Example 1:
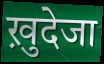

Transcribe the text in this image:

ख़ुदेजा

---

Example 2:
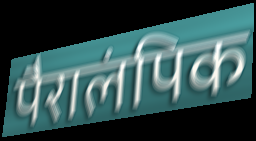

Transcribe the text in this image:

पैरालंपिक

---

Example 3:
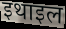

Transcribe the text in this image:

इथाइल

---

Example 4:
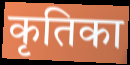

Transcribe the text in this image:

कृतिका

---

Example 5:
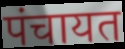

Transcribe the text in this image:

पंचायत